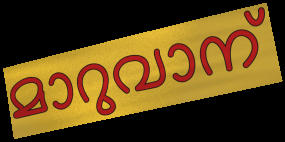
മാറുവാന്